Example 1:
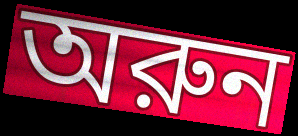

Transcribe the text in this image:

অরুন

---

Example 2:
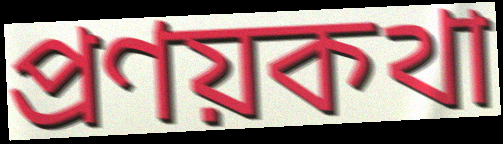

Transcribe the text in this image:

প্রণয়কথা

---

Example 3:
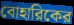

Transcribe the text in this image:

বোহারিকের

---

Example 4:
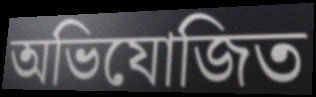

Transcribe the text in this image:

অভিযোজিত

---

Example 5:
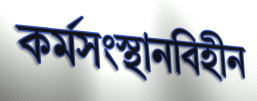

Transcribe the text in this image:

কর্মসংস্থানবিহীন